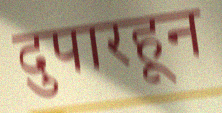
दुपारहून